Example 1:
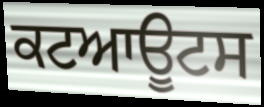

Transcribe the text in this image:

ਕਟਆਊਟਸ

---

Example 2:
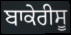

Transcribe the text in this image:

ਬਾਕੇਰੀਸੂ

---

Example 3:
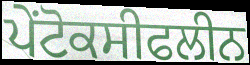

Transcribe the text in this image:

ਪੇਂਟੋਕਸੀਫਲੀਨ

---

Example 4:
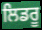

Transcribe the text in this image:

ਲਿਡਰੂ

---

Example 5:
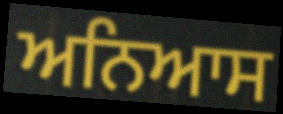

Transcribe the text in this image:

ਅਨਿਆਸ